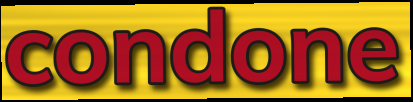
condone